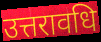
उत्तरावधि